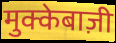
मुक्केबाज़ी